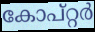
കോപ്റ്റർ